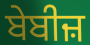
ਬੇਬੀਜ਼